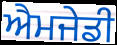
ਐਮਜੇਡੀ